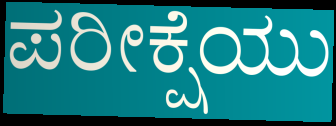
ಪರೀಕ್ಷೆಯು